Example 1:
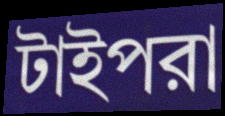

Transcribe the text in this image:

টাইপরা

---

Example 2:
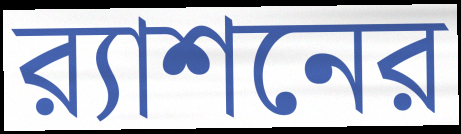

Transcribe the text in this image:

র‍্যাশনের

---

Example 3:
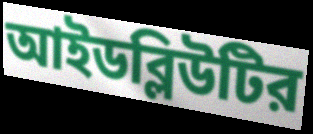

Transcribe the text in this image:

আইডব্লিউটির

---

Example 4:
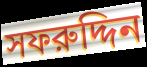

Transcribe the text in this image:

সফরুদ্দিন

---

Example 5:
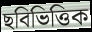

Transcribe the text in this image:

ছবিভিত্তিক